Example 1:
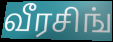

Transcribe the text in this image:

வீரசிங்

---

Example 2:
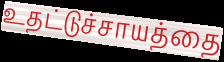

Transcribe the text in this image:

உதட்டுச்சாயத்தை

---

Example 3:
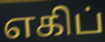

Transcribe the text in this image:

எகிப்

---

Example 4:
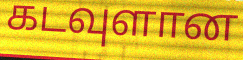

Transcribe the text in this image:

கடவுளான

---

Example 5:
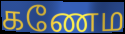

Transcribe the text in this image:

கணேம